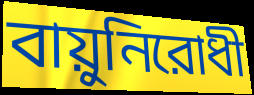
বায়ুনিরোধী